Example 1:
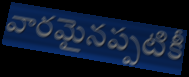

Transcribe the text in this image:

వారమైనప్పటికీ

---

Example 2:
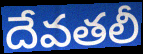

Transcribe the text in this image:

దేవతలీ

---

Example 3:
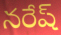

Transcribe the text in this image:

నరేష్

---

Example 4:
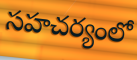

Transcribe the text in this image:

సహచర్యంలో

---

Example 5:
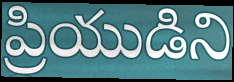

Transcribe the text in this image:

ప్రియుడిని